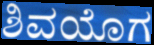
ಶಿವಯೊಗ